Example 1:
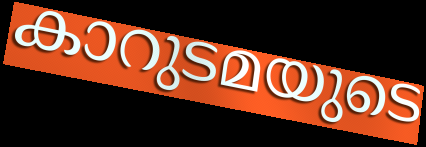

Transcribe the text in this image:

കാറുടമയുടെ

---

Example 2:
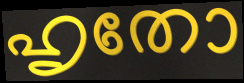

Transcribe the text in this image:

ഹൃതോ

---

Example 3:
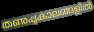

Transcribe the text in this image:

തണുപ്പുകാലങ്ങളിൽ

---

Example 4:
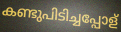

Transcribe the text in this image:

കണ്ടുപിടിച്ചപ്പോള്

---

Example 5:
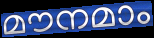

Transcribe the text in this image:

മൗനമാം